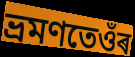
ভ্ৰমণতেওঁৰ